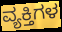
ವ್ಯಕ್ತಿಗಳ